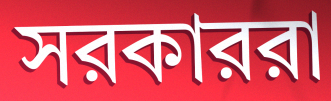
সরকাররা